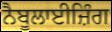
ਨੈਬੂਲਾਈਜ਼ਿੰਗ